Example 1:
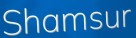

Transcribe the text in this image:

Shamsur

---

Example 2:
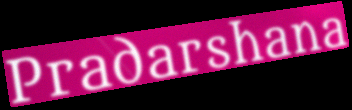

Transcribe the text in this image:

Pradarshana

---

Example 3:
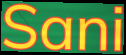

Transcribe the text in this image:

Sani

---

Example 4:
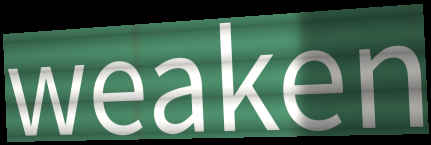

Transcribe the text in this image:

weaken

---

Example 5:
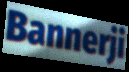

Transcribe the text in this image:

Bannerji